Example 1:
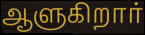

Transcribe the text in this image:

ஆளுகிறார்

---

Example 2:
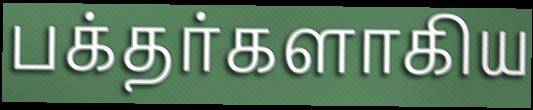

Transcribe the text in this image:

பக்தர்களாகிய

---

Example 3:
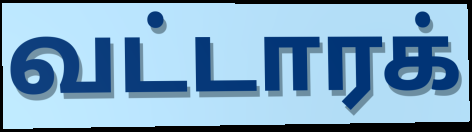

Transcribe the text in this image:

வட்டாரக்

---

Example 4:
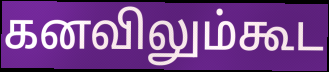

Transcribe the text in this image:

கனவிலும்கூட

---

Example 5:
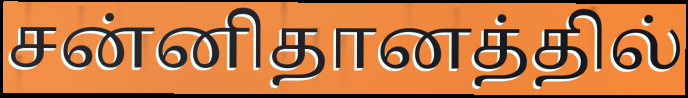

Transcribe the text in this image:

சன்னிதானத்தில்